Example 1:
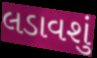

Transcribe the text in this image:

લડાવશું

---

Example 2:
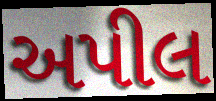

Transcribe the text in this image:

અપીલ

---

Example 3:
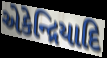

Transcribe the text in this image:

એકેન્દ્રિયાદિ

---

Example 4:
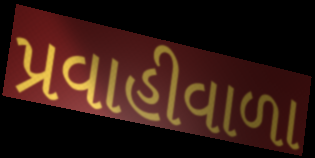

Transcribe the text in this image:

પ્રવાહીવાળા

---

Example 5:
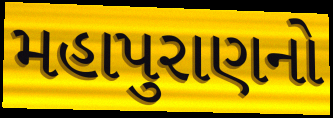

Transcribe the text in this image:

મહાપુરાણનો